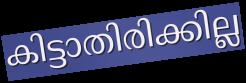
കിട്ടാതിരിക്കില്ല